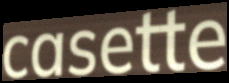
casette